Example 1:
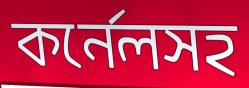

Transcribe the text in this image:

কর্নেলসহ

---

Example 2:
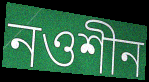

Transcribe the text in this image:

নওশীন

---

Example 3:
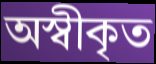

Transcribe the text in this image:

অস্বীকৃত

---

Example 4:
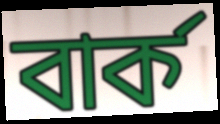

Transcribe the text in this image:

বার্ক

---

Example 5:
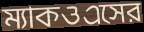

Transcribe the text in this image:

ম্যাকওএসের